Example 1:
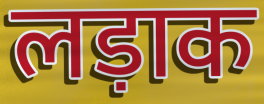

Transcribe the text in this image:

लड़ाक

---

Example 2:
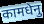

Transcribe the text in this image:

कामधेनु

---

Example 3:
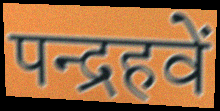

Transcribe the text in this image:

पन्द्रहवें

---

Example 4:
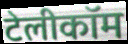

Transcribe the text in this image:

टेलीकॉम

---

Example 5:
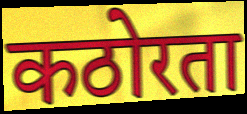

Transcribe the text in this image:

कठोरता